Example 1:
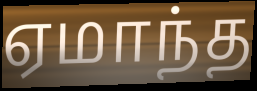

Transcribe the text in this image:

ஏமாந்த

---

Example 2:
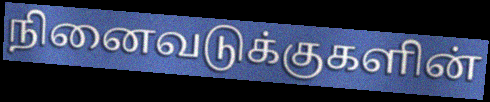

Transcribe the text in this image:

நினைவடுக்குகளின்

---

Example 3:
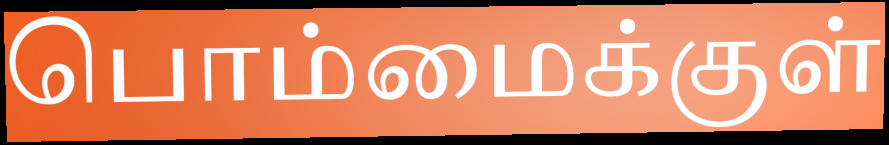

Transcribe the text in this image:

பொம்மைக்குள்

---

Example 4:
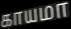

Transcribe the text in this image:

காயமா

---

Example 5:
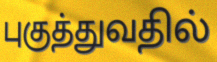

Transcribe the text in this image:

புகுத்துவதில்